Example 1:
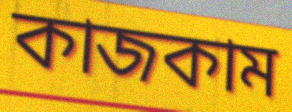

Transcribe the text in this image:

কাজকাম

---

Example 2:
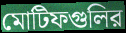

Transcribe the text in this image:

মোটিফগুলির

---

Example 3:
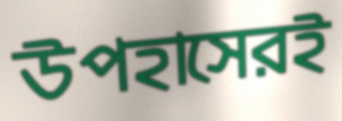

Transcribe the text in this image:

উপহাসেরই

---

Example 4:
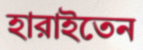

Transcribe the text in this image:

হারাইতেন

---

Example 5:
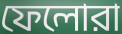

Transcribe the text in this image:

ফেলোরা